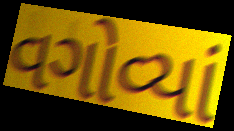
વગોવ્યાં